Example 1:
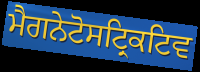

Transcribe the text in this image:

ਮੈਗਨੇਟੋਸਟ੍ਰਿਕਟਿਵ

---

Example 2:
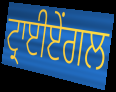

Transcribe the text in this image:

ਟ੍ਰਾਈਏਂਗਲ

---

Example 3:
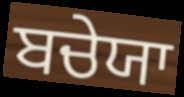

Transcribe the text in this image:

ਬਚੇਯਾ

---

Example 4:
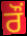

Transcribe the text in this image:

ਰੌਂ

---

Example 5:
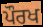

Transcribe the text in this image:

ਪੌਰਖ